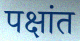
पक्षांत